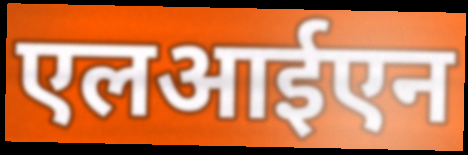
एलआईएन